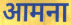
आमना